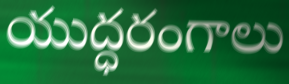
యుద్ధరంగాలు